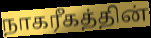
நாகரீகத்தின்